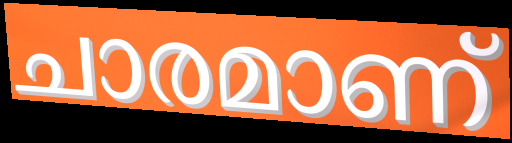
ചാരമാണ്